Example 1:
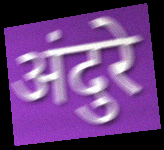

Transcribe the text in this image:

अंदुरे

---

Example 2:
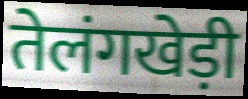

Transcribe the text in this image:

तेलंगखेड़ी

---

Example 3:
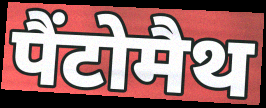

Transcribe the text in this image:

पैंटोमैथ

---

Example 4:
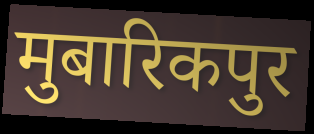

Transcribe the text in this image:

मुबारिकपुर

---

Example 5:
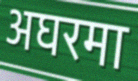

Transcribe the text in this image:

अघरमा